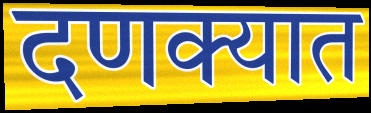
दणक्यात